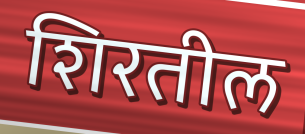
शिरतील